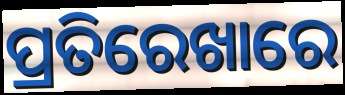
ପ୍ରତିରେଖାରେ